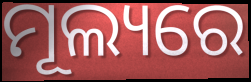
ମୂଲ୍ୟରେ